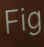
Fig